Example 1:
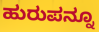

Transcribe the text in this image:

ಹುರುಪನ್ನೂ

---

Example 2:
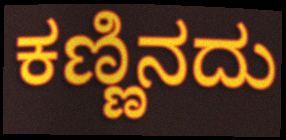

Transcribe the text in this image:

ಕಣ್ಣಿನದು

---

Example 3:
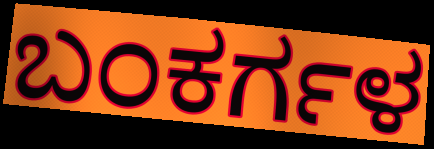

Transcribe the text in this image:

ಬಂಕರ್ಗಳ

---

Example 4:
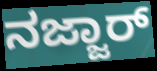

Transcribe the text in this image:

ನಜ್ಜಾರ್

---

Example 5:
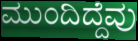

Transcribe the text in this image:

ಮುಂದಿದ್ದೆವು